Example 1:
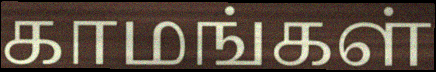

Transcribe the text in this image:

காமங்கள்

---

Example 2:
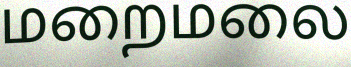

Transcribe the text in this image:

மறைமலை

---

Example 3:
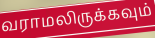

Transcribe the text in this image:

வராமலிருக்கவும்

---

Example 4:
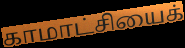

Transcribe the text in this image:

காமாட்சியைக்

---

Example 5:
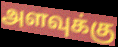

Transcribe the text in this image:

அளவுக்கு